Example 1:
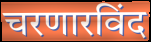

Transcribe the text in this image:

चरणारविंद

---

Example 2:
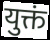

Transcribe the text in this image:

युक्तं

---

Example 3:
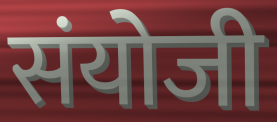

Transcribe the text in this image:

संयोजी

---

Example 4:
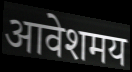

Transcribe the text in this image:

आवेशमय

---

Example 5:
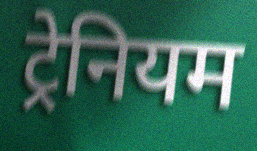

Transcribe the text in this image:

ट्रेनियम